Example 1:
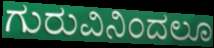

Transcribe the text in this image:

ಗುರುವಿನಿಂದಲೂ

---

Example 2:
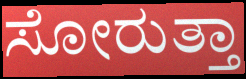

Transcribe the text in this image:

ಸೋರುತ್ತಾ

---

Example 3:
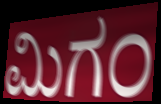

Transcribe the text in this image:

ಮಿಗಂ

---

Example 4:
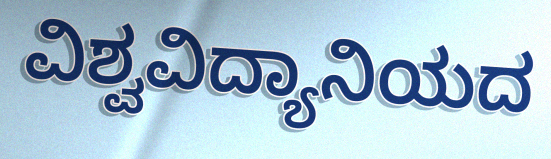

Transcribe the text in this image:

ವಿಶ್ವವಿದ್ಯಾನಿಯದ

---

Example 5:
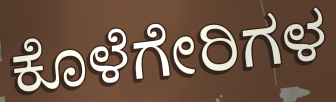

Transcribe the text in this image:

ಕೊಳೆಗೇರಿಗಳ